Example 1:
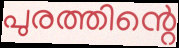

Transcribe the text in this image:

പുരത്തിന്റെ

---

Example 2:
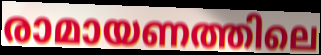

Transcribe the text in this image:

രാമായണത്തിലെ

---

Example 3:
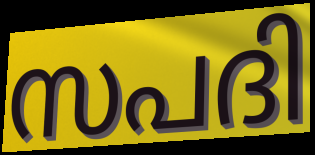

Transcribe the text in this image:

സപദി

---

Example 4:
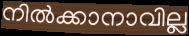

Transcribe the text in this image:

നിൽക്കാനാവില്ല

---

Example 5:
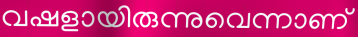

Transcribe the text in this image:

വഷളായിരുന്നുവെന്നാണ്